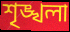
শৃঙ্খলা